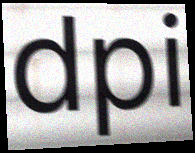
dpi